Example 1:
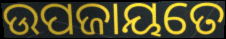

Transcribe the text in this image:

ଉପଜାୟତେ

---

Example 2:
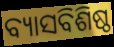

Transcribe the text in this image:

ବ୍ୟାସବିଶିଷ୍ଠ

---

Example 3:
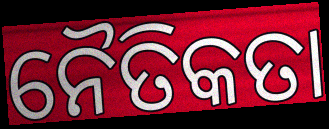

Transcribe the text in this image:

ନୈତିକତା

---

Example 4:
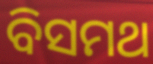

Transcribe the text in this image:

ବିସମଥ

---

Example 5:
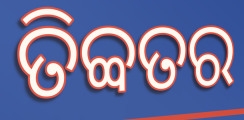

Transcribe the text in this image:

ତିବ୍ବତର